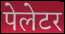
पेलेटर